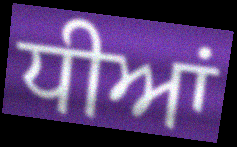
ਧੀਆਂ